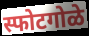
स्फोटगोळे